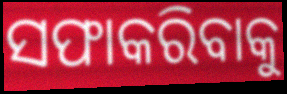
ସଫାକରିବାକୁ